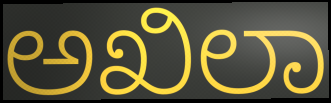
ಅಖಿಲಾ